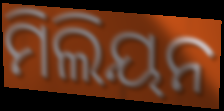
ମିଲିୟନ